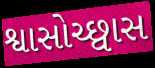
શ્વાસોચ્છ્વાસ